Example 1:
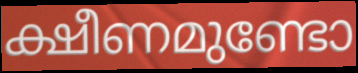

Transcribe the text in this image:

ക്ഷീണമുണ്ടോ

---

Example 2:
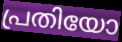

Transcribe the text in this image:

പ്രതിയോ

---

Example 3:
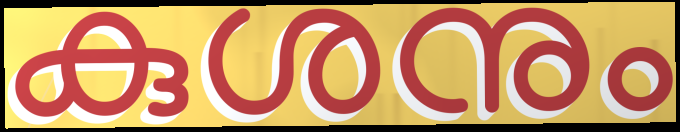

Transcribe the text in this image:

കുശനും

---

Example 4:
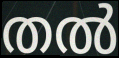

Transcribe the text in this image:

തൽ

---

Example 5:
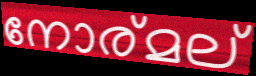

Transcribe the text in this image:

നോര്മല്